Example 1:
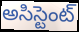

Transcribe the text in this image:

అసిస్టెంట్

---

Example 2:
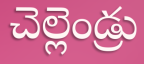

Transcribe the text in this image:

చెల్లెండ్రు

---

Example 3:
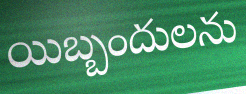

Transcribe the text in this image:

యిబ్బందులను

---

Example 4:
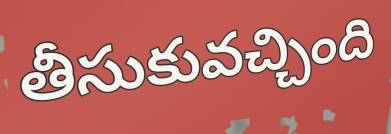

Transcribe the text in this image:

తీసుకువచ్చింది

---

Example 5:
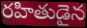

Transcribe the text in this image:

రహితుడైన